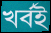
খর্বই